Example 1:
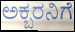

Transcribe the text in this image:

ಅಕ್ಬರನಿಗೆ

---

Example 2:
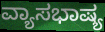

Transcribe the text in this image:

ವ್ಯಾಸಭಾಷ್ಯ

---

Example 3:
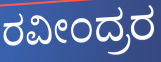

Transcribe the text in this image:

ರವೀಂದ್ರರ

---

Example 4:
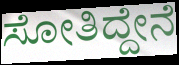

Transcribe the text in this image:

ಸೋತಿದ್ದೇನೆ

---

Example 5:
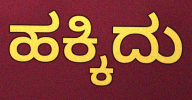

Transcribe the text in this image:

ಹಕ್ಕಿದು